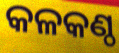
କଳକଣ୍ଠ